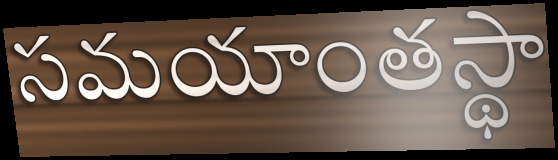
సమయాంతస్థా